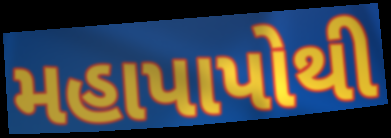
મહાપાપોથી